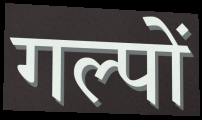
गल्पों